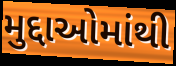
મુદ્દાઓમાંથી